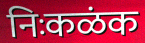
निःकळंक